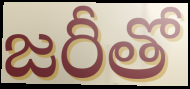
జరీతో